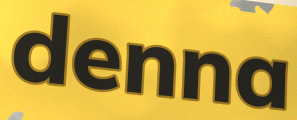
denna